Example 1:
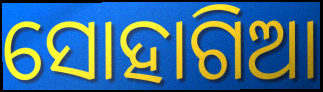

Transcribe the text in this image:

ସୋହାଗିଆ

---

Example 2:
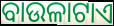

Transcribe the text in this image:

ବାଉଳାଟାଏ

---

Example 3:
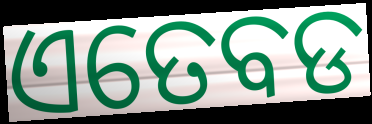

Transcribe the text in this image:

ଏତେବଡ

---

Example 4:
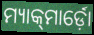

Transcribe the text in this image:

ମ୍ୟାକ୍‍ମାର୍ଡ଼ୋ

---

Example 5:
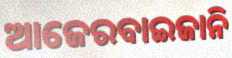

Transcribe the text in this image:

ଆଜେରବାଇଜାନି